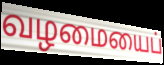
வழமையைப்